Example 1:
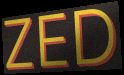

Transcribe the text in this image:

ZED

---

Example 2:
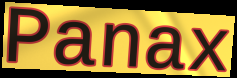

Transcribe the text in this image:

Panax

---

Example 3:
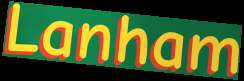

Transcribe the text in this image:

Lanham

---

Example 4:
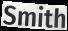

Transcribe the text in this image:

Smith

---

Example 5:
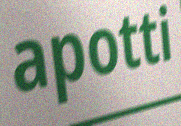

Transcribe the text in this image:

apotti